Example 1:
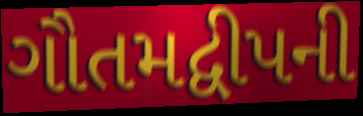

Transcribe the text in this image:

ગૌતમદ્વીપની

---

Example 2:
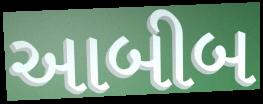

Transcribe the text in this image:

આબીબ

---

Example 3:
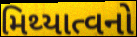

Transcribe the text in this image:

મિથ્યાત્વનો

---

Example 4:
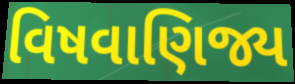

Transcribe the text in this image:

વિષવાણિજ્ય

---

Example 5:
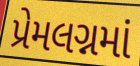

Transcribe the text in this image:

પ્રેમલગ્નમાં